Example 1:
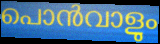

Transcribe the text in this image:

പൊൻവാളും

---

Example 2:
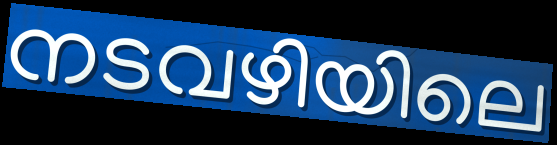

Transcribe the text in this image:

നടവഴിയിലെ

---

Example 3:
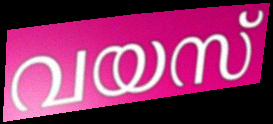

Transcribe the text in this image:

വയസ്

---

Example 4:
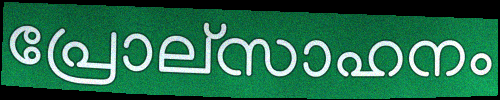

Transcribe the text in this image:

പ്രോല്സാഹനം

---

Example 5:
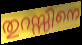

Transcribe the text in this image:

തുറസ്സിനെ